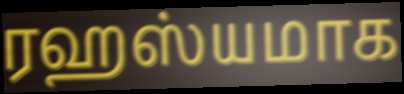
ரஹஸ்யமாக